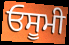
ਓਸੂਮੀ